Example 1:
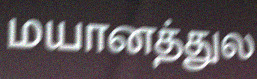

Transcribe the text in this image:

மயானத்துல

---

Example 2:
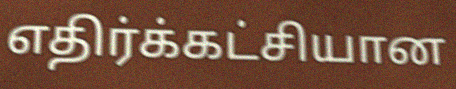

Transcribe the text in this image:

எதிர்க்கட்சியான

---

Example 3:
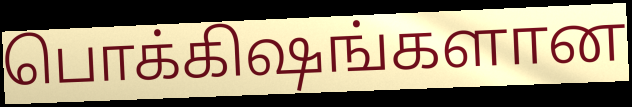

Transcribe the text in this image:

பொக்கிஷங்களான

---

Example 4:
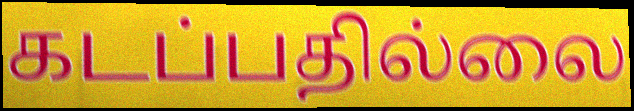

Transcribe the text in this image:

கடப்பதில்லை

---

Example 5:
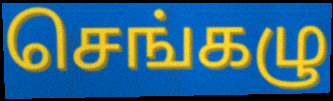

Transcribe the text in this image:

செங்கழு